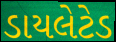
ડાયલેટેડ